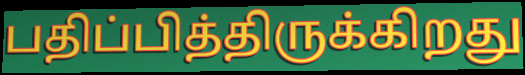
பதிப்பித்திருக்கிறது